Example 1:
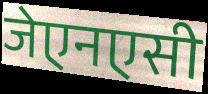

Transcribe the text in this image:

जेएनएसी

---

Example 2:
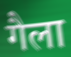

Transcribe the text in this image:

गैला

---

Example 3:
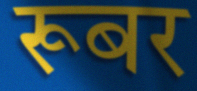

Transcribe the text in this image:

रूबर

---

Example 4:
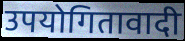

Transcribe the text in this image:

उपयोगितावादी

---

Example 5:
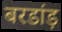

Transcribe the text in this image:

बरडांड़